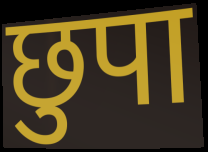
छुपा